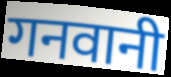
गनवानी